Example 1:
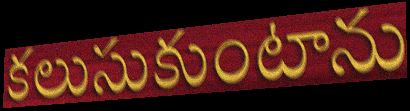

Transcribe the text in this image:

కలుసుకుంటాను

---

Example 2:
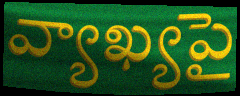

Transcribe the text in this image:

వ్యాఖ్యపై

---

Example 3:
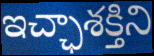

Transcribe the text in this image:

ఇచ్ఛాశక్తిని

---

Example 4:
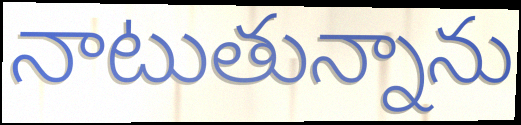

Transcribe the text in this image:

నాటుతున్నాను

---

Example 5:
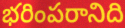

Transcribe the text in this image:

భరింపరానిది